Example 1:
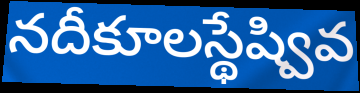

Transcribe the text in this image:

నదీకూలస్థేష్వివ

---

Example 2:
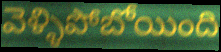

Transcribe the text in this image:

వెళ్ళిపోబోయింది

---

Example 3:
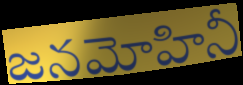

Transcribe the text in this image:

జనమోహినీ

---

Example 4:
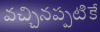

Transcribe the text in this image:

వచ్చినప్పటికే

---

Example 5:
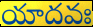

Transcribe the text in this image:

యాదవః